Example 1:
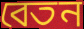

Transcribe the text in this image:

বেতন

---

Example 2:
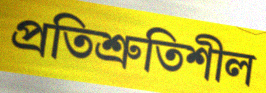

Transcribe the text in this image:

প্রতিশ্রুতিশীল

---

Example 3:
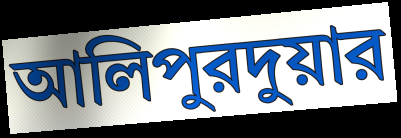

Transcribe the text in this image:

আলিপুরদুয়ার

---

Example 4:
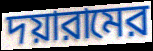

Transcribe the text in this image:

দয়ারামের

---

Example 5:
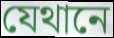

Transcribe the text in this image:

যেথানে